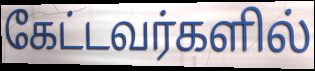
கேட்டவர்களில்